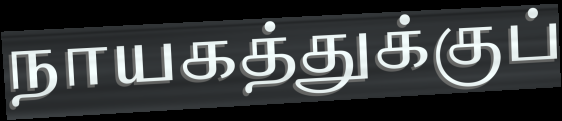
நாயகத்துக்குப்